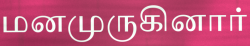
மனமுருகினார்